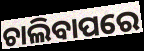
ଚାଲିବାପରେ